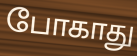
போகாது